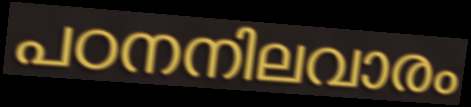
പഠനനിലവാരം